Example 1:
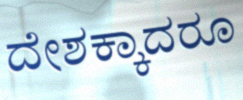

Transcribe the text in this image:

ದೇಶಕ್ಕಾದರೂ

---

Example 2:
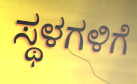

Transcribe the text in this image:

ಸ್ಥಳಗಳಿಗೆ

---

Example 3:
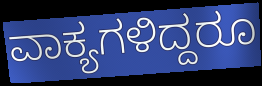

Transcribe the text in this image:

ವಾಕ್ಯಗಳಿದ್ದರೂ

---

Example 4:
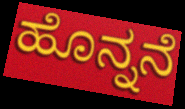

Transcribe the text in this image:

ಹೊನ್ನನೆ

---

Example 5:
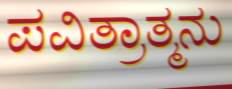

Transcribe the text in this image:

ಪವಿತ್ರಾತ್ಮನು